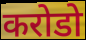
करोडो